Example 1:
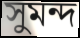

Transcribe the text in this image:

সুমন্দ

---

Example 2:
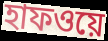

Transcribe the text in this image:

হাফওয়ে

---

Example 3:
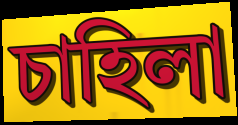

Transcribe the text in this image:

চাহিলা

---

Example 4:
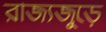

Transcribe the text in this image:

রাজ্যজুড়ে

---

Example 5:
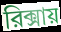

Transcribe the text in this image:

রিক্সায়